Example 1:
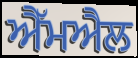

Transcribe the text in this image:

ਐੱਮਐਲ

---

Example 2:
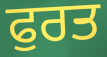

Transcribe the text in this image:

ਫੁਰਤ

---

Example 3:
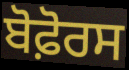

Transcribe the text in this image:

ਬੋਫ਼ੋਰਸ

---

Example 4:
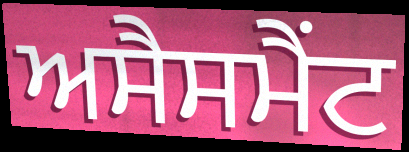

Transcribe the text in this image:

ਅਸੈਸਮੈਂਟ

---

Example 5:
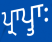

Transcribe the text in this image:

ਪ੍ਰਾਪ੍ਤਾਃ